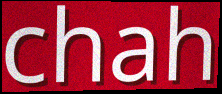
chah